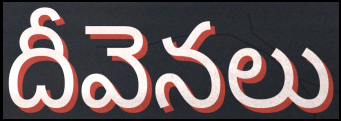
దీవెనలు